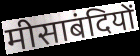
मीसाबंदियों